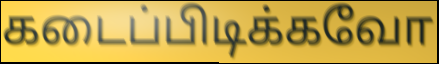
கடைப்பிடிக்கவோ